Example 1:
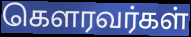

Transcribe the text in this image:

கெளரவர்கள்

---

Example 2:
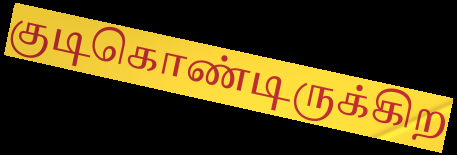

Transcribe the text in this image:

குடிகொண்டிருக்கிற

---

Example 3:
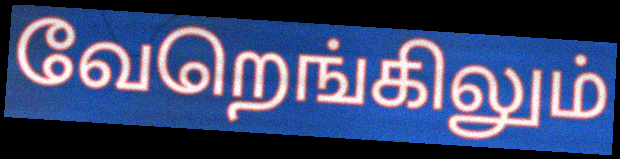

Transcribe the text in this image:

வேறெங்கிலும்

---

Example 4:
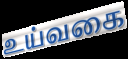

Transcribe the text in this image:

உய்வகை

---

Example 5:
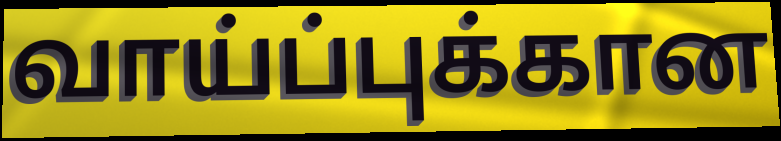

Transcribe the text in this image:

வாய்ப்புக்கான